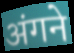
अंगने